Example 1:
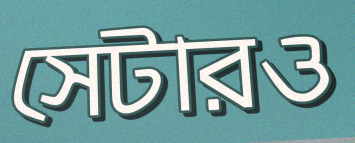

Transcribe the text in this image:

সেটারও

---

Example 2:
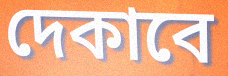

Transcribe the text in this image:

দেকাবে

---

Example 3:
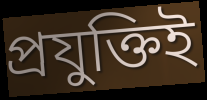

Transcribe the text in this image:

প্রযুক্তিই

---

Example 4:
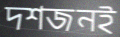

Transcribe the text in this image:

দশজনই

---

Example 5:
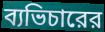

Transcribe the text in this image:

ব্যভিচারের